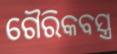
ଗୈରିକବସ୍ତ୍ର